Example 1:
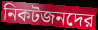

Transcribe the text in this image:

নিকটজনদের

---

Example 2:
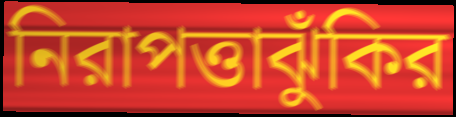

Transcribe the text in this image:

নিরাপত্তাঝুঁকির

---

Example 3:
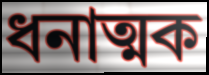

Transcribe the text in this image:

ধনাত্মক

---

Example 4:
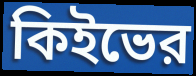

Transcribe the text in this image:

কিইভের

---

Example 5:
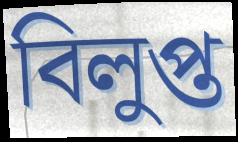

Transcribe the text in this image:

বিলুপ্ত